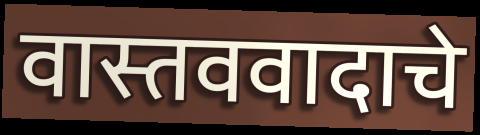
वास्तववादाचे